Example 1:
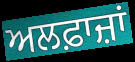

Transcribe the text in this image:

ਅਲਫ਼ਾਜ਼ਾਂ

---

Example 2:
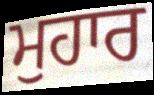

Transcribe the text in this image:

ਮੁਹਾਰ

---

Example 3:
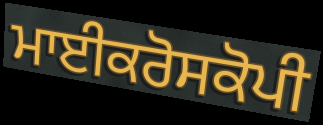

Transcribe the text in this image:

ਮਾਈਕਰੋਸਕੋਪੀ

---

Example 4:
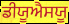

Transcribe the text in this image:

ਡੀਯੂਐਸਯੂ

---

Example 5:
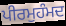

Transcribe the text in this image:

ਪੀਰਮੁਹੰਮਦ